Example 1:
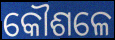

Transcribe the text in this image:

କୌଶଳେ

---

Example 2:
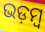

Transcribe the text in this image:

ଭଡ଼ମ୍ବ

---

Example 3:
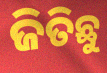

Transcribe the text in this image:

ଜିତିଛୁ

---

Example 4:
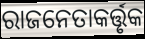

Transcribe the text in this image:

ରାଜନେତାକର୍ତ୍ତୃକ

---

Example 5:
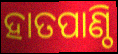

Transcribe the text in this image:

ହାତପାଣ୍ଠି